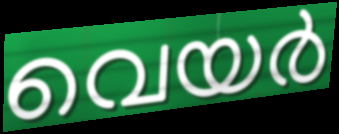
വെയർ